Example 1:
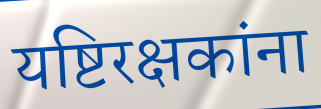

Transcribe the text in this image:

यष्टिरक्षकांना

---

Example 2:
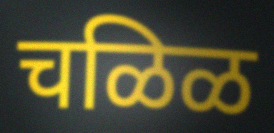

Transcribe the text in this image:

चळिळ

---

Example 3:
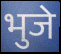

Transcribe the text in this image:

भुजे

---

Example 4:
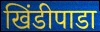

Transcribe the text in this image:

खिंडीपाडा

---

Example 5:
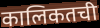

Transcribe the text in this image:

कालिकतची